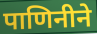
पाणिनीने